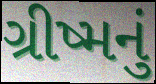
ગ્રીષ્મનું